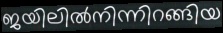
ജയിലിൽനിന്നിറങ്ങിയ